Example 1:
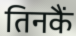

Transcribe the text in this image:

तिनकैं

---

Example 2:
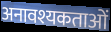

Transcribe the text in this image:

अनावश्यकताओं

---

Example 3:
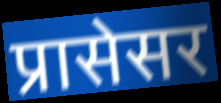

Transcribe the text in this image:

प्रासेसर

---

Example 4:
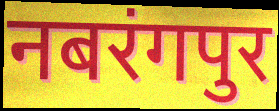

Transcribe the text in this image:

नबरंगपुर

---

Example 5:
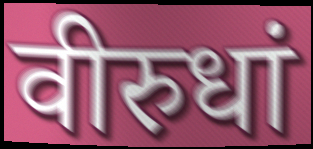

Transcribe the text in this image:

वीरुधां